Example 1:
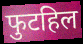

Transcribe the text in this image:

फुटहिल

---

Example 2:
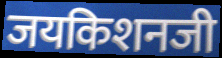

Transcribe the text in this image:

जयकिशनजी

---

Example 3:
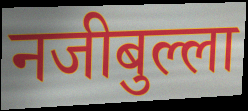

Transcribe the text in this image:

नजीबुल्ला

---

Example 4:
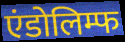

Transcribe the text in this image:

एंडोलिम्फ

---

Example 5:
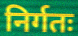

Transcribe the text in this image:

निर्गतः